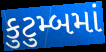
કુટુમ્બમાં